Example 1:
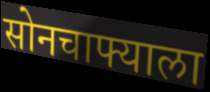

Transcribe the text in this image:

सोनचाफ्याला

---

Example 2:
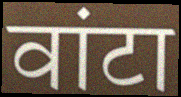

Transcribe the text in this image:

वांटा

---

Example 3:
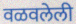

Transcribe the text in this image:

वळवलेली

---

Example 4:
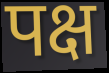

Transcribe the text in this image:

पक्ष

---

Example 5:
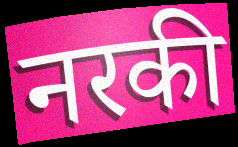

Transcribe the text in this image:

नरकी